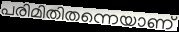
പരിമിതിതന്നെയാണ്